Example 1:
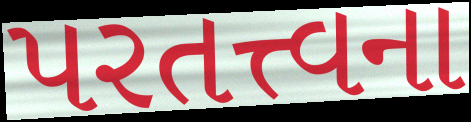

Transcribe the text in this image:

પરતત્ત્વના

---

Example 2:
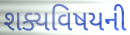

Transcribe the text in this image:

શક્યવિષયની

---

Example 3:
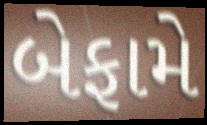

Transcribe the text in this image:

બેફામે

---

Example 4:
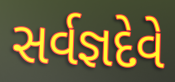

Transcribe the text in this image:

સર્વજ્ઞદેવે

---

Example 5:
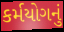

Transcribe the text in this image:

કર્મયોગનું